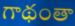
గాథంతా